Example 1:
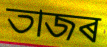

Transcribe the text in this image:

তাজৰ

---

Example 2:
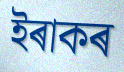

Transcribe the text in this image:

ইৰাকৰ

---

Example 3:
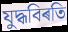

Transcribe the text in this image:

যুদ্ধবিৰতি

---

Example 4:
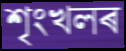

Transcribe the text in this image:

শৃংখলৰ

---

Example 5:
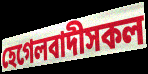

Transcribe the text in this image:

হেগেলবাদীসকল